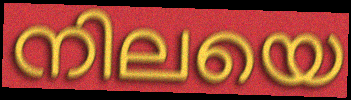
നിലയെ